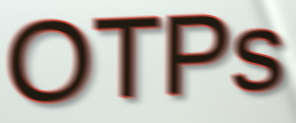
OTPs